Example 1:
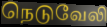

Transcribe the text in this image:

நெடுவேலி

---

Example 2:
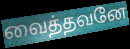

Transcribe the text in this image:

வைத்தவனே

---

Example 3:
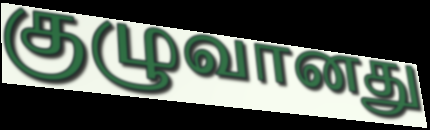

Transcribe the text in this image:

குழுவானது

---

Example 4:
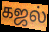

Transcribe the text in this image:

கஜல்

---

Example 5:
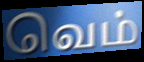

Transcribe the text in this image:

வெம்